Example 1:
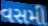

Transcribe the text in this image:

વસમી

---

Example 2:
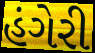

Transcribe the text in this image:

હંગેરી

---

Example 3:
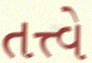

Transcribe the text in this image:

તત્ત્વે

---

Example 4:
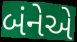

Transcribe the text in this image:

બંનેએ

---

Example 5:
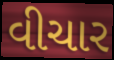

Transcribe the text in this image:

વીચાર